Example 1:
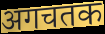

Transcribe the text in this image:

अगचतक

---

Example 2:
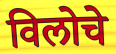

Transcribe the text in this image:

विलोचे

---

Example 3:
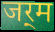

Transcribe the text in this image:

जर्म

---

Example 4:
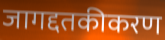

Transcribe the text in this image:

जागद्दतकीकरण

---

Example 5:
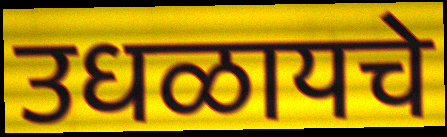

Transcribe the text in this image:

उधळायचे